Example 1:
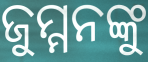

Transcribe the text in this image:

ଜୁମ୍ମନଙ୍କୁ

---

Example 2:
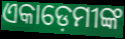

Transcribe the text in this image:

ଏକାଡ଼େମୀଙ୍କ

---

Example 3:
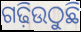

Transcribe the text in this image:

ଗଢ଼ିଉଠୁଛି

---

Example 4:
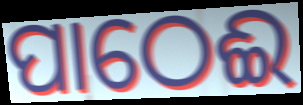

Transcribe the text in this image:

ପାଠେଈ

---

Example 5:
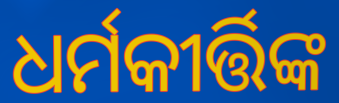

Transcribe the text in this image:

ଧର୍ମକୀର୍ତ୍ତିଙ୍କ